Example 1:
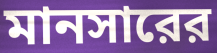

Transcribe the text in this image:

মানসারের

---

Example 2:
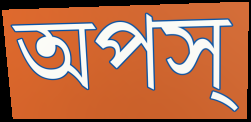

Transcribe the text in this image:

অপস্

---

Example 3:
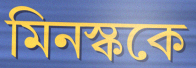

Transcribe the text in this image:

মিনস্ককে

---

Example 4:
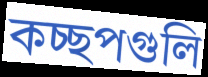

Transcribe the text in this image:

কচ্ছপগুলি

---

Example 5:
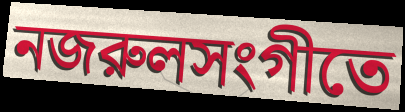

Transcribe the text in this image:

নজরুলসংগীতে